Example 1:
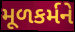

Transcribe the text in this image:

મૂળકર્મને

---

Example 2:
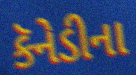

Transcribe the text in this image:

કૅનેડીના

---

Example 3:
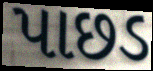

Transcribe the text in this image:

પાછડ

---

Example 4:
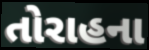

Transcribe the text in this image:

તોરાહના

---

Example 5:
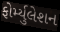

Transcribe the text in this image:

ફોર્મ્યુલેશન